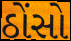
ઠોંસો